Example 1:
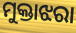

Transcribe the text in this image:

ମୁକ୍ତାଝରା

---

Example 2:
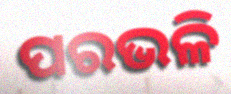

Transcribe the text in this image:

ପରଭଳି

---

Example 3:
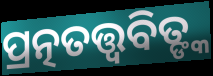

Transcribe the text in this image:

ପ୍ରତ୍ନତତ୍ତ୍ୱବିତ୍ଙ୍କ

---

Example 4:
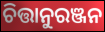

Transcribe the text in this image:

ଚିତ୍ତାନୁରଞ୍ଜନ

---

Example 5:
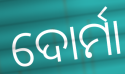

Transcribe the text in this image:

ଦୋର୍ମା